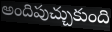
అందిపుచ్చుకుంది